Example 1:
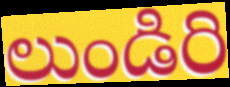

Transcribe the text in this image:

లుండిరి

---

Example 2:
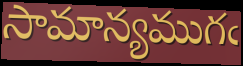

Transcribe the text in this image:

సామాన్యముగఁ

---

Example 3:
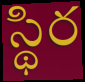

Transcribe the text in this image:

స్థిర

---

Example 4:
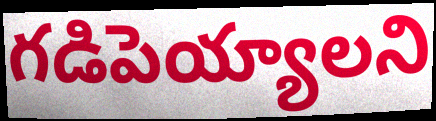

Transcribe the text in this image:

గడిపెయ్యాలని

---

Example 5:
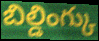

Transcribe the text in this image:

బిల్డింగ్కు